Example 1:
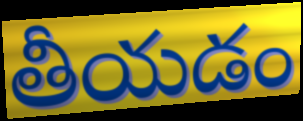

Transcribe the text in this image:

తీయడం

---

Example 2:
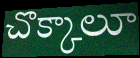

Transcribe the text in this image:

చొక్కాలూ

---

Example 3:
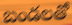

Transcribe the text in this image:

బండలతో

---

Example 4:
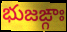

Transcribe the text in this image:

భుజఙ్గాః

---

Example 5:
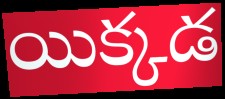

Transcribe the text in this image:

యిక్కడ